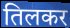
तिलकर